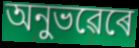
অনুভৱেৰে